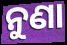
ନୁଣା